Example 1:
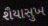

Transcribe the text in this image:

શૈયાસુખ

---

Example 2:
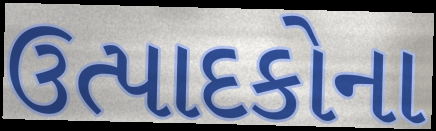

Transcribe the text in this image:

ઉત્પાદકોના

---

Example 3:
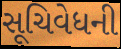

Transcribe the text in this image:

સૂચિવેધની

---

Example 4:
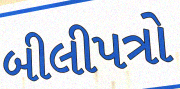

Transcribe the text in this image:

બીલીપત્રો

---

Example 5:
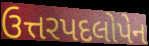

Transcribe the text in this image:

ઉત્તરપદલોપેન